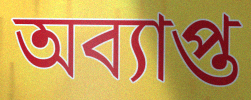
অব্যাপ্ত